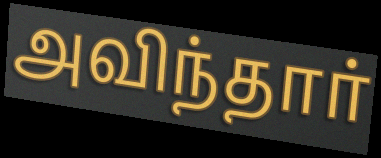
அவிந்தார்